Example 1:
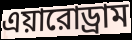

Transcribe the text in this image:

এয়ারোড্রাম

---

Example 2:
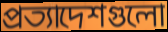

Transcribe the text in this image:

প্রত্যাদেশগুলো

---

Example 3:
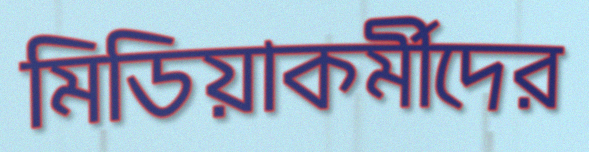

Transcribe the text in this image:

মিডিয়াকর্মীদের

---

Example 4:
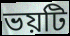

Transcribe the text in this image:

ভয়টি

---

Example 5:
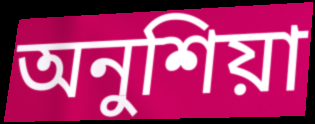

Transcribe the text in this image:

অনুশিয়া